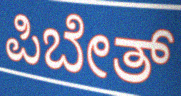
ಪಿಬೇತ್